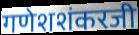
गणेशशंकरजी